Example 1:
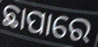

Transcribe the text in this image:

ଛାପାରେ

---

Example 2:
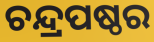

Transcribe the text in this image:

ଚନ୍ଦ୍ରପଷ୍ଠର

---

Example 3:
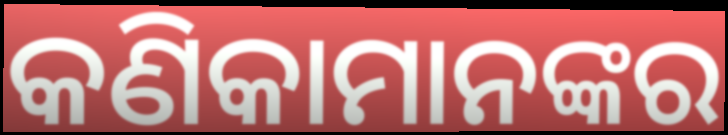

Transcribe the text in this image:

କଣିକାମାନଙ୍କର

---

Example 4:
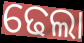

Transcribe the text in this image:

ଢେଲା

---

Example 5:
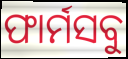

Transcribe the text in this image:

ଫାର୍ମସବୁ